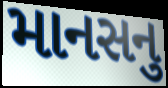
માનસનુ